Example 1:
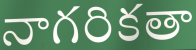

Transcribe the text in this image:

నాగరికతా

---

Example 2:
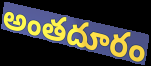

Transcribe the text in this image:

అంతదూరం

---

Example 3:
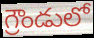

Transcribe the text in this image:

గ్రౌండులో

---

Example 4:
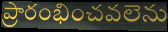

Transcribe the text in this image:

ప్రారంభించవలెను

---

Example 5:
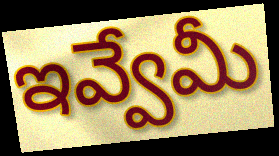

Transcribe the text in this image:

ఇవ్వేమీ